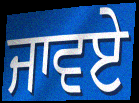
ਜਾਵਏ